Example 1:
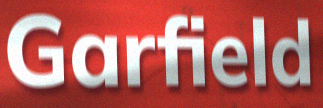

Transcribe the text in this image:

Garfield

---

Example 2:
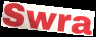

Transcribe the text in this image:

Swra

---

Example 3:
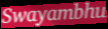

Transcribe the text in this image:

Swayambhu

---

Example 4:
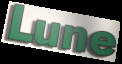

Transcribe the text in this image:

Lune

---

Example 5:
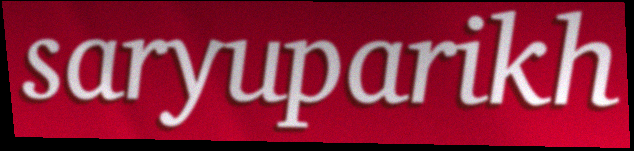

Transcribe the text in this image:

saryuparikh